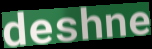
deshne